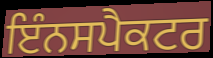
ਇੰਨਸਪੈਕਟਰ